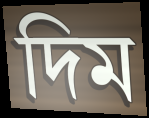
দিম